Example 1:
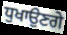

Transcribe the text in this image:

ਧੁਖਾਉਣਗੇ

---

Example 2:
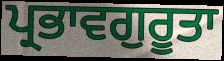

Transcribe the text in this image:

ਪ੍ਰਭਾਵਗੁਰੂਤਾ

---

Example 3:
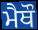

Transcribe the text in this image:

ਮੈਥੌ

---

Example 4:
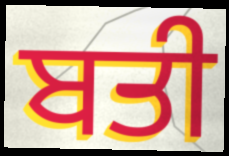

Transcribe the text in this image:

ਬਤੀ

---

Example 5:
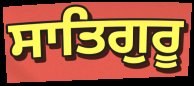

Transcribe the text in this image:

ਸਾਤਿਗੁਰੂ